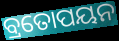
ବ୍ରତୋପୟନ